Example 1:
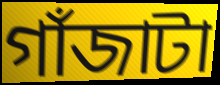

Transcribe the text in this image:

গাঁজাটা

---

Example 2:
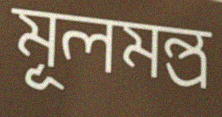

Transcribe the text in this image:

মূলমন্ত্র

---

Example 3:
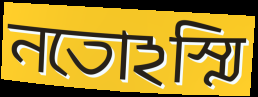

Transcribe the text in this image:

নতোঽস্মি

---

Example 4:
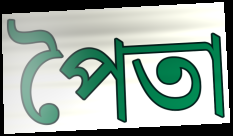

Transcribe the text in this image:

পৈতা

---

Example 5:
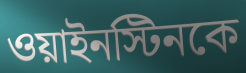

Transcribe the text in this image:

ওয়াইনস্টিনকে